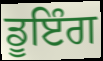
ਡੂਇੰਗ